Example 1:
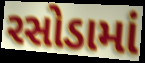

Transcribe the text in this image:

રસોડામાં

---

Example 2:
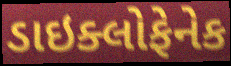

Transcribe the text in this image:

ડાઇક્લોફેનેક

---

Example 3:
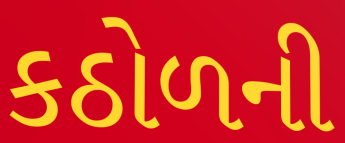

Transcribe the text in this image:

કઠોળની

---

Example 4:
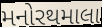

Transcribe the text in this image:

મનોરથમાલા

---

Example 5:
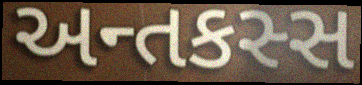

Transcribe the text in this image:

અન્તકસ્સ